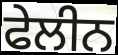
ਫੇਲੀਨ